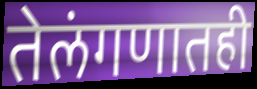
तेलंगणातही